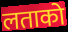
लताको